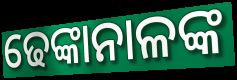
ଢେଙ୍କାନାଳଙ୍କ